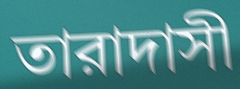
তারাদাসী